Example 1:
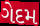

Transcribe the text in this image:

ગેદમ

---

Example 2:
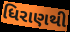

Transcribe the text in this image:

ધિરાણથી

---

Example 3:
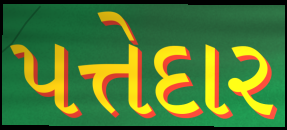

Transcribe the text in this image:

પત્તેદાર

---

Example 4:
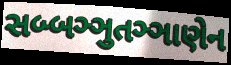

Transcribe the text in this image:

સબ્બઞ્ઞુતઞ્ઞાણેન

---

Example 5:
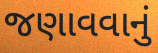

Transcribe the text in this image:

જણાવવાનું